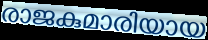
രാജകുമാരിയായ